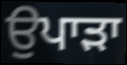
ਉਪਾੜਾ